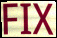
FIX